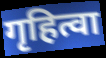
गृहित्वा